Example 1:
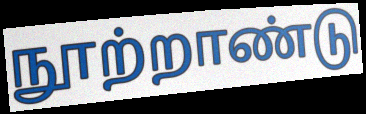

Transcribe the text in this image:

நூற்றாண்டு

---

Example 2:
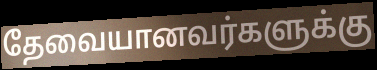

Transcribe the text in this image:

தேவையானவர்களுக்கு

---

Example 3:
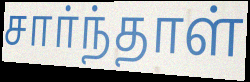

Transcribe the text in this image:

சார்ந்தாள்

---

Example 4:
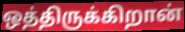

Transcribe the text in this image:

ஒத்திருக்கிறான்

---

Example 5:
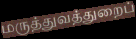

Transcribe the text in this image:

மருத்துவத்துறைப்